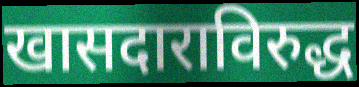
खासदाराविरुद्ध